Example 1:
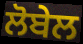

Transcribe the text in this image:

ਲੋਬੇਲ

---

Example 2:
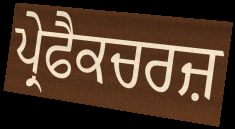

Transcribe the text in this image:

ਪ੍ਰੇਫੈਕਚਰਜ਼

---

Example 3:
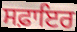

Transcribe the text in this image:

ਸਫ਼ਾਇਰ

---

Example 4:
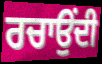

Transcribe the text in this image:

ਰਚਾਉਂਦੀ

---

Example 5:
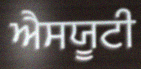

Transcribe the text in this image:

ਐਸਯੂਟੀ